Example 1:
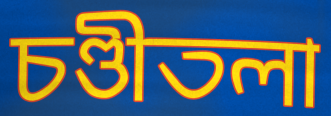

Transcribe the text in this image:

চণ্ডীতলা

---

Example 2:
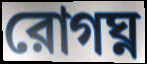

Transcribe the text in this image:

রোগঘ্ন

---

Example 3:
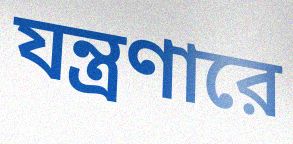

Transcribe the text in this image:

যন্ত্রণারে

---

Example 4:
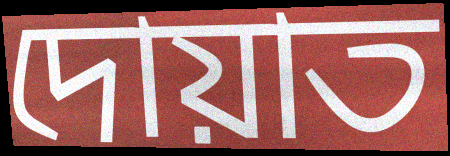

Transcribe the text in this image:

দোয়াত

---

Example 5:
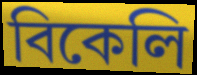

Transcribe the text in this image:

বিকেলি